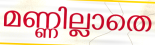
മണ്ണില്ലാതെ